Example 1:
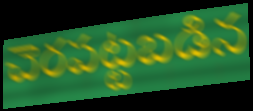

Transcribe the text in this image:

చెరపట్టబడిన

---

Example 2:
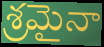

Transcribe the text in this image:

శ్రమైనా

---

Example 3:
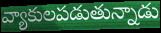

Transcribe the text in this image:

వ్యాకులపడుతున్నాడు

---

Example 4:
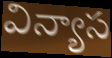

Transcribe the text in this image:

విన్యాస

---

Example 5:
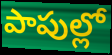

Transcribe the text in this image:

పాపుల్లో